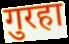
गुरहा